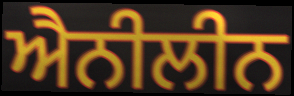
ਐਨੀਲੀਨ